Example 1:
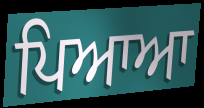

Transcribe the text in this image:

ਪਿਆਆ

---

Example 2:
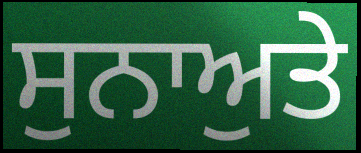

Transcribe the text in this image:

ਸੁਨਾਅੁਤੇ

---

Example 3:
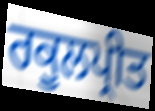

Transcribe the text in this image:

ਰਕੂਲਪ੍ਰੀਤ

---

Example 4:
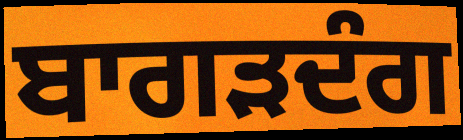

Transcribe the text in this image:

ਬਾਗੜਦੰਗ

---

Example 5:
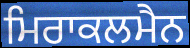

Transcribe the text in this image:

ਮਿਰਾਕਲਮੈਨ